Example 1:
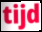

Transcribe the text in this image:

tijd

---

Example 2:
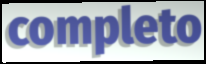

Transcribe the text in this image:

completo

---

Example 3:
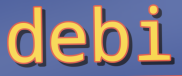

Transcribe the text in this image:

debi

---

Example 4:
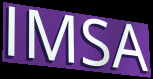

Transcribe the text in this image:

IMSA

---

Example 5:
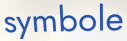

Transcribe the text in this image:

symbole